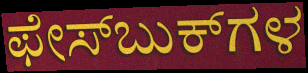
ಫೇಸ್‌ಬುಕ್‌ಗಳ